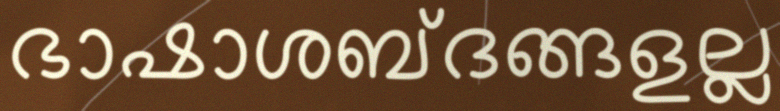
ഭാഷാശബ്ദങ്ങളല്ല